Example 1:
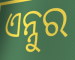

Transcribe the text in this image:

ଏନ୍ନୁର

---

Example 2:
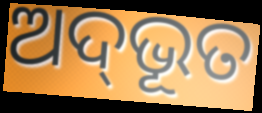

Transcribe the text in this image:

ଅଦ୍‌ଭୂତ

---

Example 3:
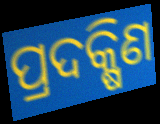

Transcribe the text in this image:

ପ୍ରଦକ୍ଷିଣ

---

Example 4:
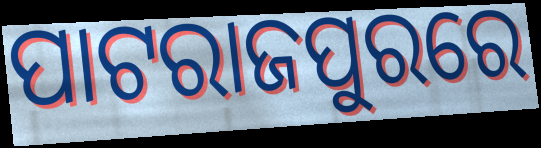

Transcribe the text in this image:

ପାଟରାଜପୁରରେ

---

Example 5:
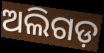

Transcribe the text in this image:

ଅଲିଗଡ଼